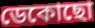
ডেকোছো